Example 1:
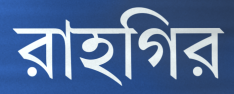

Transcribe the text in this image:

রাহগির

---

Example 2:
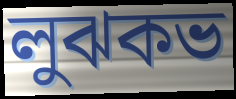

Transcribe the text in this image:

লুঝকভ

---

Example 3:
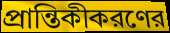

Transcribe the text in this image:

প্রান্তিকীকরণের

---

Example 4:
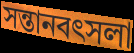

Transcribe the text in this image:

সন্তানবৎসলা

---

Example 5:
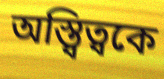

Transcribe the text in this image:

অস্ত্বিত্বকে